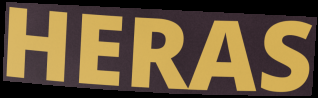
HERAS